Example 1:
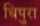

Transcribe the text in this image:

चिपुरा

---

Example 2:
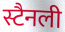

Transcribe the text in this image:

स्टैनली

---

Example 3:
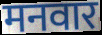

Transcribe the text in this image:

मनवार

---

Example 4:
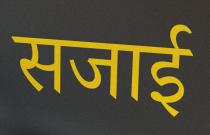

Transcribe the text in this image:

सजाई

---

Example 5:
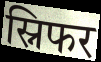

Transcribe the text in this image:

स्निफर